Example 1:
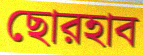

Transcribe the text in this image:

ছোরহাব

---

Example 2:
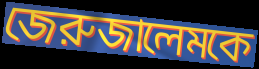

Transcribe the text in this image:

জেরুজালেমকে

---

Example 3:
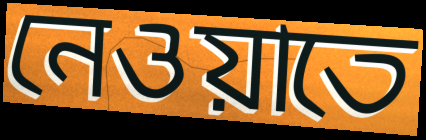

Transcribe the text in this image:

নেওয়াতে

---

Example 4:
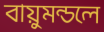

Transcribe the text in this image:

বায়ুমন্ডলে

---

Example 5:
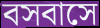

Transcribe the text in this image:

বসবাসে